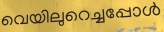
വെയിലുറെച്ചപ്പോൾ